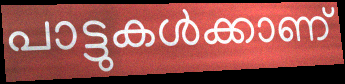
പാട്ടുകൾക്കാണ്